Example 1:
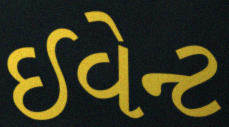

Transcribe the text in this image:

ઈવેન્ટ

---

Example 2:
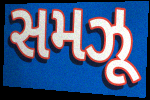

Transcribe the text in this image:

સમઝૂ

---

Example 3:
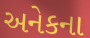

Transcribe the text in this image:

અનેકના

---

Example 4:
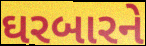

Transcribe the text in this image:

ઘરબારને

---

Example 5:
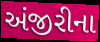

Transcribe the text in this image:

અંજીરીના